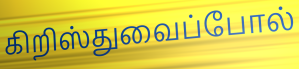
கிறிஸ்துவைப்போல்